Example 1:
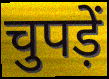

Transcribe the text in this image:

चुपड़ें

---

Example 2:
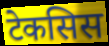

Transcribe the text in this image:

टेकसिस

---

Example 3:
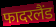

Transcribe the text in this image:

फादरलैंड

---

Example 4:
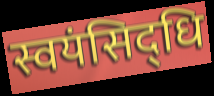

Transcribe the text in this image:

स्वयंसिद्धि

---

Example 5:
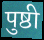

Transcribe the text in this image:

पुष्ठी